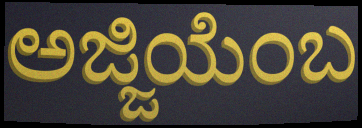
ಅಜ್ಜಿಯೆಂಬ